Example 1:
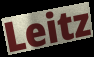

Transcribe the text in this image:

Leitz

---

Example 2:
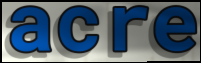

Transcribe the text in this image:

acre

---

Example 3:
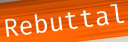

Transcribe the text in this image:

Rebuttal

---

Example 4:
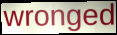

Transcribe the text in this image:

wronged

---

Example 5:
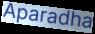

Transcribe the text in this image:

Aparadha